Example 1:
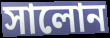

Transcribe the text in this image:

সালোন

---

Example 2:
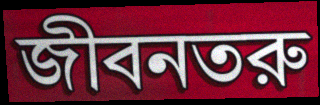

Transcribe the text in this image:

জীবনতরু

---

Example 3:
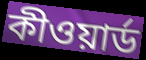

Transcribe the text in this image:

কীওয়ার্ড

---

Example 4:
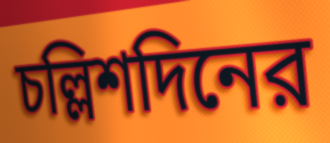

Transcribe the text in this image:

চল্লিশদিনের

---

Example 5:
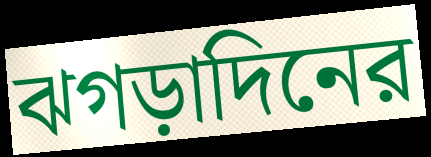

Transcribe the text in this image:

ঝগড়াদিনের